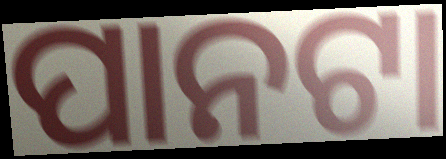
ପାନଟା